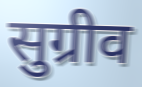
सुग्रीव